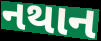
નથાન